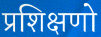
प्रशिक्षणो